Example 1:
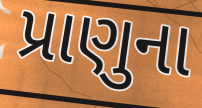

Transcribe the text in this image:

પ્રાણુના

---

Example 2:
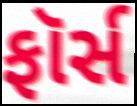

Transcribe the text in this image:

ફૉર્સ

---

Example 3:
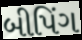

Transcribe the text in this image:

બીપિંગ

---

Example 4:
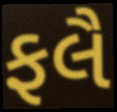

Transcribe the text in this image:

ફલૈ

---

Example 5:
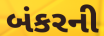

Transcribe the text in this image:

બંકરની